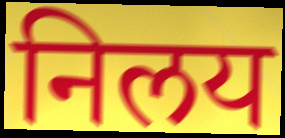
निलय